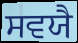
ਸਵਯੈ